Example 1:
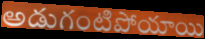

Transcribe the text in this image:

అడుగంటిపోయాయి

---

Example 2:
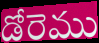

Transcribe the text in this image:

డోరెము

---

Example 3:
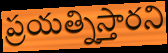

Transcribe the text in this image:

ప్రయత్నిస్తారని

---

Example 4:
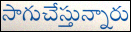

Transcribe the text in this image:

సాగుచేస్తున్నారు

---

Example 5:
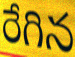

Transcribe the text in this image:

రేగిన